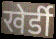
खेर्डी